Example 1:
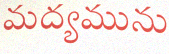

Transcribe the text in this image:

మద్యమును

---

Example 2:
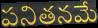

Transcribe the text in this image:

పనితనమే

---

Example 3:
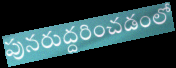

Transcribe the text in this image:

పునరుద్దరించడంలో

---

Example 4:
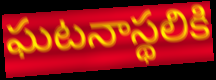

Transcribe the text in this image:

ఘటనాస్థలికి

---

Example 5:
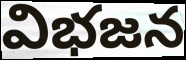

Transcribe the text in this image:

విభజన